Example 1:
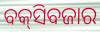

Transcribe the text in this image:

ବକ୍‌ସିବଜାର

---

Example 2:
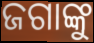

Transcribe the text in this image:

ଜଗାଙ୍କୁ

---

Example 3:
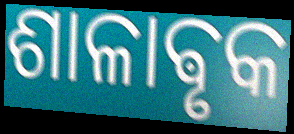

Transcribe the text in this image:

ଶାଳାଵୃକ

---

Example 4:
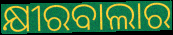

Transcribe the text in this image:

କ୍ଷୀରବାଲାର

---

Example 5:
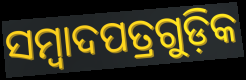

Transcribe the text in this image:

ସମ୍ୱାଦପତ୍ରଗୁଡ଼ିକ